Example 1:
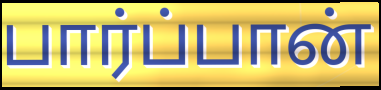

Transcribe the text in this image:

பார்ப்பான்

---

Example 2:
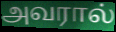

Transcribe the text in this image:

அவரால்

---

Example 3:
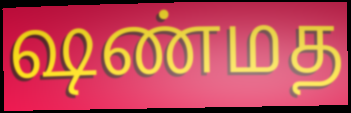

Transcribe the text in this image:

ஷண்மத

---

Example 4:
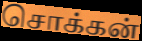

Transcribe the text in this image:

சொக்கன்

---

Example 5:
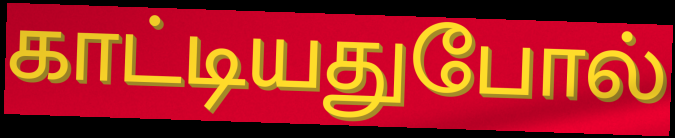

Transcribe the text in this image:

காட்டியதுபோல்